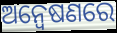
ଅନ୍ବେଷଣରେ